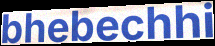
bhebechhi